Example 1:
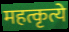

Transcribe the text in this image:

महत्कृत्ये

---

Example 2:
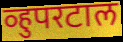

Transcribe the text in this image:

व्हुपरटाल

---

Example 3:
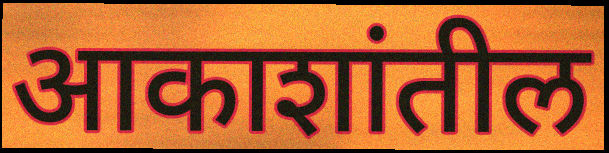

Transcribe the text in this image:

आकाशांतील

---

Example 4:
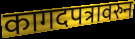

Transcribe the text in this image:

कागदपत्रावरुन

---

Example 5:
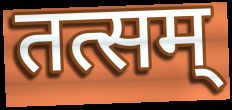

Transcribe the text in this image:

तत्सम्